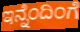
ಇನ್ನೆಂದಿಂಗೆ